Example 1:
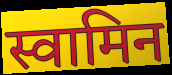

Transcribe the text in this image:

स्वामिन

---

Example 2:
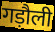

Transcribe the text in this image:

गड़ौली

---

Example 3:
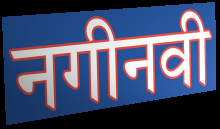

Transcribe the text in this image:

नगीनवी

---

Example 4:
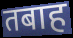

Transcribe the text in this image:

तबाह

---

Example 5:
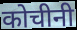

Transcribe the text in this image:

कोचीनी